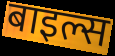
बाइल्स